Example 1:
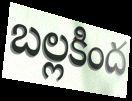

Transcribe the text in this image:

బల్లకింద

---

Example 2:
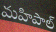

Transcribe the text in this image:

మహిపాల్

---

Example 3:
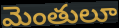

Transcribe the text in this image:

మెంతులూ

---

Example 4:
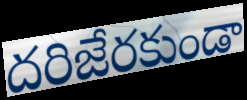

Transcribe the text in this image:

దరిజేరకుండా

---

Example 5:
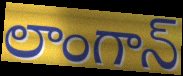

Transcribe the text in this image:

లాంగాన్